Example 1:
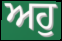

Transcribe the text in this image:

ਅਹੁ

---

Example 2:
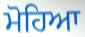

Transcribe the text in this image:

ਮੋਹਿਆ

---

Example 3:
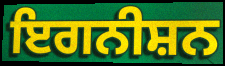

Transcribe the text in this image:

ਇਗਨੀਸ਼ਨ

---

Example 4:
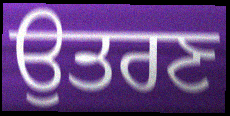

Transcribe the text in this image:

ਉਤਰਣ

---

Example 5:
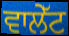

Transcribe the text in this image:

ਵਾਲੇੱਟ